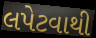
લપેટવાથી